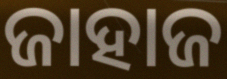
ଜାହାଜ